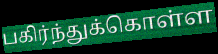
பகிர்ந்துக்கொள்ள